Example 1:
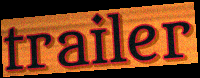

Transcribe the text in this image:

trailer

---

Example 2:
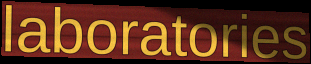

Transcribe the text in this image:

laboratories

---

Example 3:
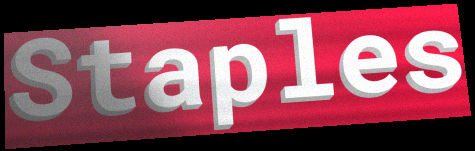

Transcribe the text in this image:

Staples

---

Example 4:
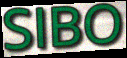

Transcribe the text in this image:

SIBO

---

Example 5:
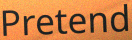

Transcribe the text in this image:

Pretend